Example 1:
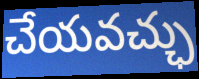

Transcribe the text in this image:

చేయవచ్ఛు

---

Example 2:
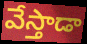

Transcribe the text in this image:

వేస్తాడా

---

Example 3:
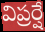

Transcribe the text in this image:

విప్రర్షే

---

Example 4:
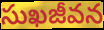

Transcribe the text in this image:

సుఖజీవన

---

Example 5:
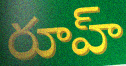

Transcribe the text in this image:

రూహ్